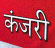
कंजरी